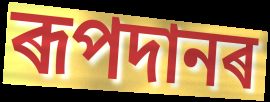
ৰূপদানৰ